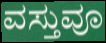
ವಸ್ತುವೂ